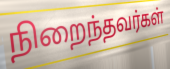
நிறைந்தவர்கள்